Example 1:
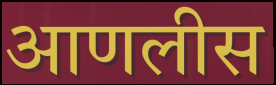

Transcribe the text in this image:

आणलीस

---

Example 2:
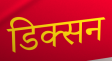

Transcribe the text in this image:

डिक्सन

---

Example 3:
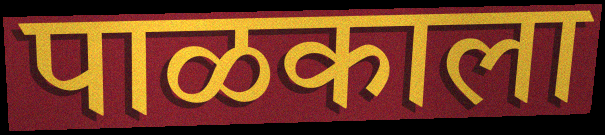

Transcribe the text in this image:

पाळकाला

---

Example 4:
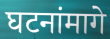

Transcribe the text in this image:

घटनांमागे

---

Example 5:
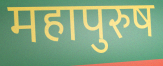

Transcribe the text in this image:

महापुरुष